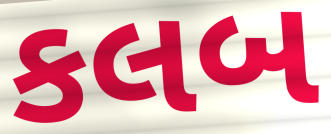
કલબ